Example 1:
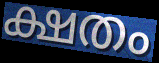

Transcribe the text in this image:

ക്ഷതം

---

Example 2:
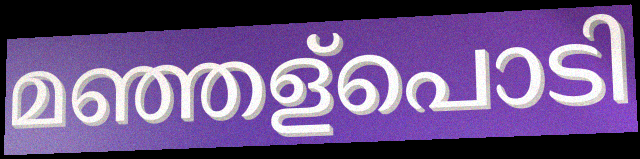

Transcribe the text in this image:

മഞ്ഞള്പൊടി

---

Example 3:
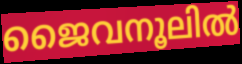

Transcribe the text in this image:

ജൈവനൂലിൽ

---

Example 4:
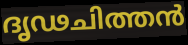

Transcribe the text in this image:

ദൃഢചിത്തൻ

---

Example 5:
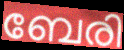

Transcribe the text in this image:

ബേരി